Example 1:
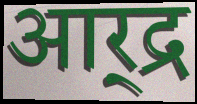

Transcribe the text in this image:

आर्द्र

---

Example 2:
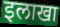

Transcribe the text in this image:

इलाखा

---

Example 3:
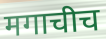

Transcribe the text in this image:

मगाचीच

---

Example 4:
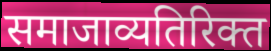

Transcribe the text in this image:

समाजाव्यतिरिक्त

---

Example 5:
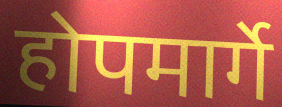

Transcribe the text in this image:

होपमार्गे